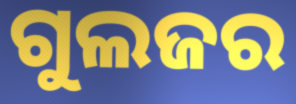
ଗୁଲଜର